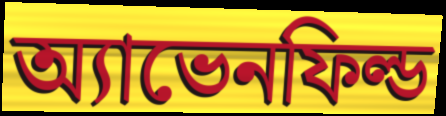
অ্যাভেনফিল্ড